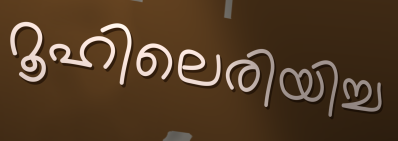
റൂഹിലെരിയിച്ച